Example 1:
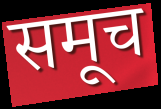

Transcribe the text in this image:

समूच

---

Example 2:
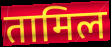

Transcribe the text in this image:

तामिल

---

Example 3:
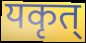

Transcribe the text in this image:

यकृत्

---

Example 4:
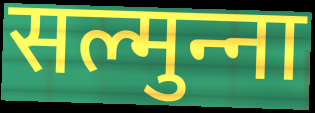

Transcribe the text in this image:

सल्मुन्ना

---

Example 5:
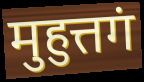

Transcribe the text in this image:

मुहुत्तगं